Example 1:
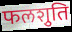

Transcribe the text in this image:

फलश्रुति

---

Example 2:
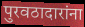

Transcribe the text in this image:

पुरवठादारांना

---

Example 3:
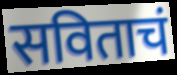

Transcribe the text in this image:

सविताचं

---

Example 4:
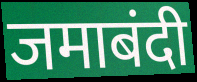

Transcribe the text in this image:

जमाबंदी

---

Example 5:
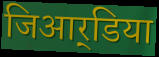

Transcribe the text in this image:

जिआर्डिया